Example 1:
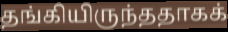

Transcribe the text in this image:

தங்கியிருந்ததாகக்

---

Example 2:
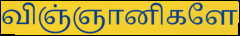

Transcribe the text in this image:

விஞ்ஞானிகளே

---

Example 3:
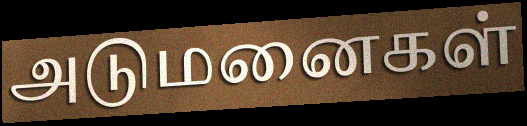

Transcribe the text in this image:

அடுமனைகள்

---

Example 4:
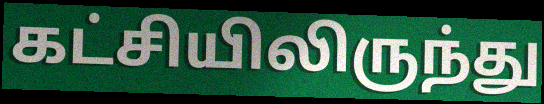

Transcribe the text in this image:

கட்சியிலிருந்து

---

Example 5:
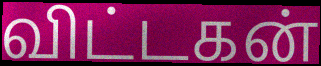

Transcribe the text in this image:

விட்டகன்